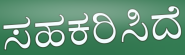
ಸಹಕರಿಸಿದೆ